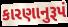
કારણાનુરૂપં